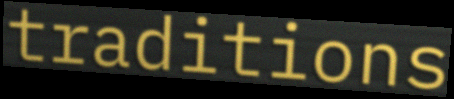
traditions